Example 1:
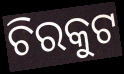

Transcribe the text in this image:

ଚିରକୁଟ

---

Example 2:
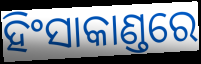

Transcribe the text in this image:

ହିଂସାକାଣ୍ଡରେ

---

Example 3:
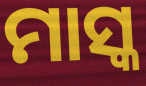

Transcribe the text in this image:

ମାସ୍କ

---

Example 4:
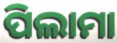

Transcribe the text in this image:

ପିଲାମା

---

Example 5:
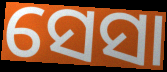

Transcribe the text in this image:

ସେସା